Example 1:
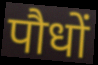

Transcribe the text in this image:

पौधों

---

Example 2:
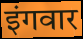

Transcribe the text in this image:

इंगवार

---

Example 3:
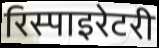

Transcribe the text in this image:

रिस्पाइरेटरी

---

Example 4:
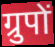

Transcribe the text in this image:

ग्रुपों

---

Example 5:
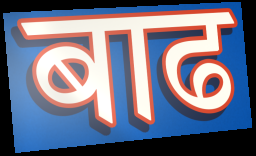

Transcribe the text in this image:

बाढ